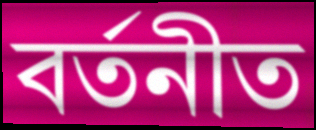
বৰ্তনীত